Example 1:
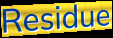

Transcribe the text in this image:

Residue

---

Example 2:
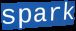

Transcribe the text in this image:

spark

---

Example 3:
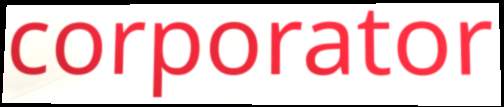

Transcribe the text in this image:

corporator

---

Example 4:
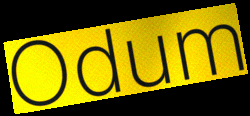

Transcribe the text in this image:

Odum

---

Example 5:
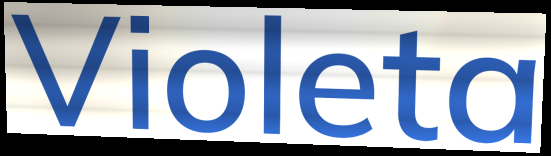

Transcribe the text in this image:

Violeta